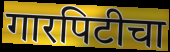
गारपिटीचा